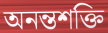
অনন্তশক্তি